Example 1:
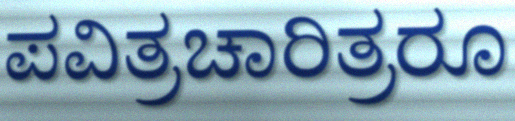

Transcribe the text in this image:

ಪವಿತ್ರಚಾರಿತ್ರರೂ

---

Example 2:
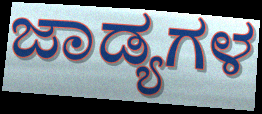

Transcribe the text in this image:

ಜಾಡ್ಯಗಳ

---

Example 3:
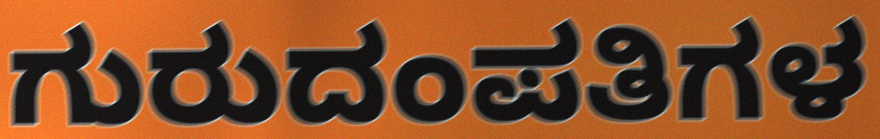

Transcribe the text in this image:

ಗುರುದಂಪತಿಗಳ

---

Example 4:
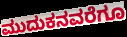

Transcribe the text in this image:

ಮುದುಕನವರೆಗೂ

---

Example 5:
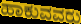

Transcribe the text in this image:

ಹಾಕುವವರು